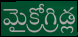
మైక్రోగ్రిడ్ల